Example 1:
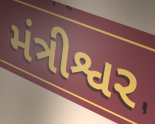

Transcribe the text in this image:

મંત્રીશ્વર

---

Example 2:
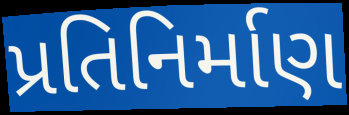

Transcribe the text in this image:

પ્રતિનિર્માણ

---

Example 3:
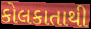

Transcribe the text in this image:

કોલકાતાથી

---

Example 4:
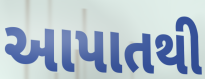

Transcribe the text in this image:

આપાતથી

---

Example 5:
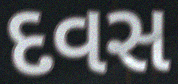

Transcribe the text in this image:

દવસ